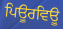
ਪਿਊਰਵਿਊ